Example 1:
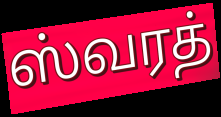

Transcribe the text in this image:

ஸ்வரத்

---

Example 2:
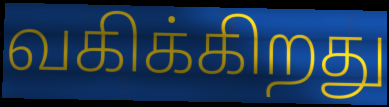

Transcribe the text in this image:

வகிக்கிறது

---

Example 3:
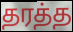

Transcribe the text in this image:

தரத்த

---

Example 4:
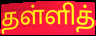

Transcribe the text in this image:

தள்ளித்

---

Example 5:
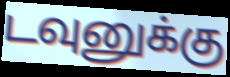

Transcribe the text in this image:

டவுனுக்கு